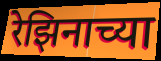
रेझिनाच्या